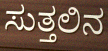
ಸುತ್ತಲಿನ